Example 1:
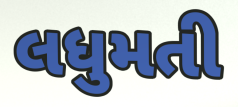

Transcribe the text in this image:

લધુમતી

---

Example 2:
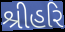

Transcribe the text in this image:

શ્રીહરિ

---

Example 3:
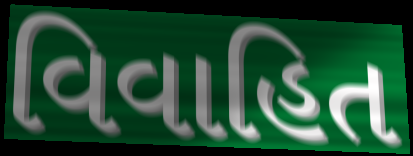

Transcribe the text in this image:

વિવાહિત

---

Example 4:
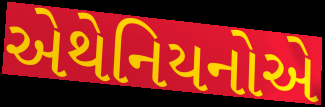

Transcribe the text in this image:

એથેનિયનોએ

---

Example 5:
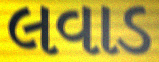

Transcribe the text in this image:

લવાડ